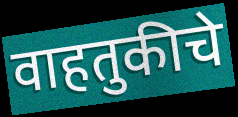
वाहतुकीचे